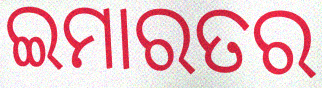
ଇମାରତର